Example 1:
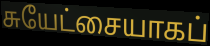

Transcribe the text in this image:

சுயேட்சையாகப்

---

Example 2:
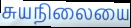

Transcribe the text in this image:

சுயநிலையை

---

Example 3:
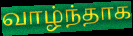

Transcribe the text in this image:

வாழ்ந்தாக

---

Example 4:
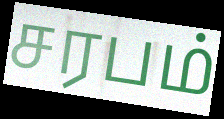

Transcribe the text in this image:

சரபம்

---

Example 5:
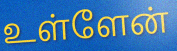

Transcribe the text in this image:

உள்ளேன்